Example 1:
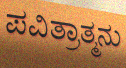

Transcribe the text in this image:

ಪವಿತ್ರಾತ್ಮನು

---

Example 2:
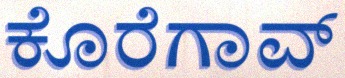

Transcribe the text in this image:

ಕೊರೆಗಾವ್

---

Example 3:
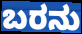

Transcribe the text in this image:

ಬರನು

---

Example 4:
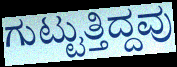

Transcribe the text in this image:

ಗುಟ್ಟುತ್ತಿದ್ದವು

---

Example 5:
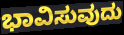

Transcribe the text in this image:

ಭಾವಿಸುವುದು